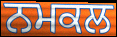
ਨਮਕਲ